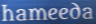
hameeda